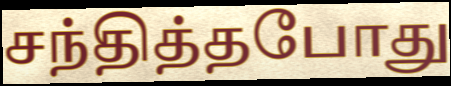
சந்தித்தபோது